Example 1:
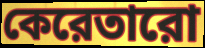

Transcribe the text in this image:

কেরেতারো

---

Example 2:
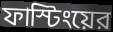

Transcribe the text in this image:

ফাস্টিংয়ের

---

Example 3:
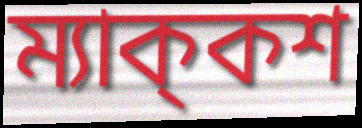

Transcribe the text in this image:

ম্যাক্‌কশ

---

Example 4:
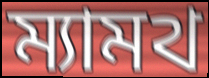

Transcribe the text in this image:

ম্যামথ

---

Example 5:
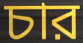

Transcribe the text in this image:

চার